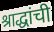
श्राद्धांची